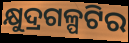
କ୍ଷୁଦ୍ରଗଳ୍ପଟିର